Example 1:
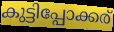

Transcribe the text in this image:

കുട്ടിപ്പോക്കര്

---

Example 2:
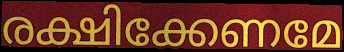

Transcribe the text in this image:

രക്ഷിക്കേണമേ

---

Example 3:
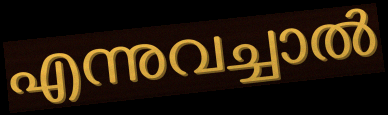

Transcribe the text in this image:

എന്നുവച്ചാൽ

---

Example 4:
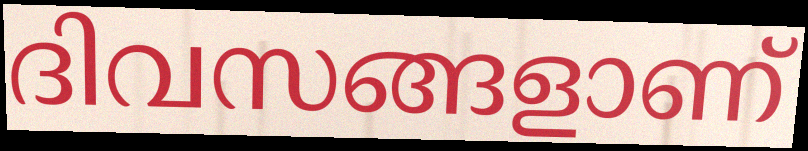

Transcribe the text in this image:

ദിവസങ്ങളാണ്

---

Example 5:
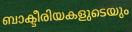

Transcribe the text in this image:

ബാക്ടീരിയകളുടെയും